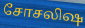
சோசலிஷ